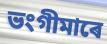
ভংগীমাৰে